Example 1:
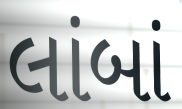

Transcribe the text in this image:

લાંબાં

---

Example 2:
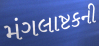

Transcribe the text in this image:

મંગલાષ્ટકની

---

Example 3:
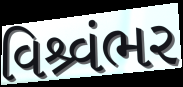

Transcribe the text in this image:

વિશ્ર્વંભર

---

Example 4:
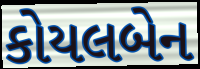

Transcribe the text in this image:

કોયલબેન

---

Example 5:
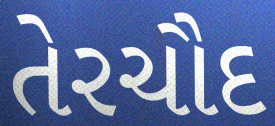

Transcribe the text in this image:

તેરચૌદ